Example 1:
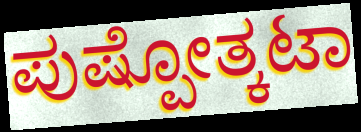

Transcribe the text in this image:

ಪುಷ್ಪೋತ್ಕಟಾ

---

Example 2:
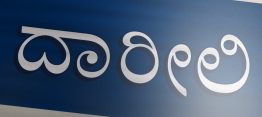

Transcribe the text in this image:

ದಾರೀಲಿ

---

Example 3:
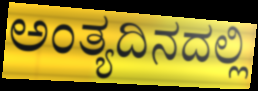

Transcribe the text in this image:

ಅಂತ್ಯದಿನದಲ್ಲಿ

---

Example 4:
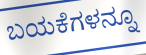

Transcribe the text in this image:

ಬಯಕೆಗಳನ್ನೂ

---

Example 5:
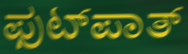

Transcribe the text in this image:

ಫುಟ್‍ಪಾತ್